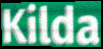
Kilda